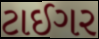
ટાઈગર